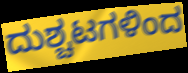
ದುಶ್ಚಟಗಳಿಂದ